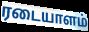
ரடையாளம்